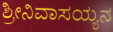
ಶ್ರೀನಿವಾಸಯ್ಯನ